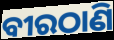
ବୀରଠାଣି